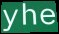
yhe